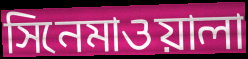
সিনেমাওয়ালা